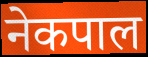
नेकपाल